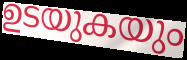
ഉടയുകയും